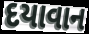
દયાવાન